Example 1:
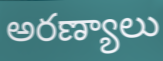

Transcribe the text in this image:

అరణ్యాలు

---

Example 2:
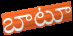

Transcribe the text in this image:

బాటూ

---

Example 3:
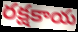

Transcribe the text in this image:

రక్షకాయ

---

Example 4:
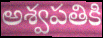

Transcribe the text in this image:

అశ్వపతికి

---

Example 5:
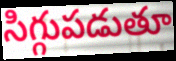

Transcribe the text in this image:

సిగ్గుపడుతూ